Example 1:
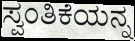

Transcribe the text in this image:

ಸ್ವಂತಿಕೆಯನ್ನ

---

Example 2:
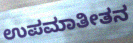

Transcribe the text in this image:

ಉಪಮಾತೀತನ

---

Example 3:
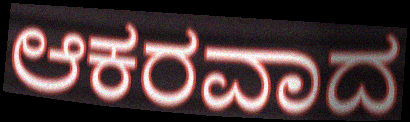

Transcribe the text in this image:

ಆಕರವಾದ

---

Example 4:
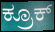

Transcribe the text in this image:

ಕ್ರೂಕ್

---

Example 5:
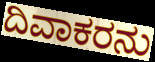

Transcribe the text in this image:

ದಿವಾಕರನು